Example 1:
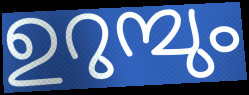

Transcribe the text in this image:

ഉറുമ്പും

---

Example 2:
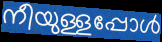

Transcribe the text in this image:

നീയുള്ളപ്പോൾ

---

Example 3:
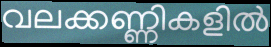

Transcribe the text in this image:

വലക്കണ്ണികളിൽ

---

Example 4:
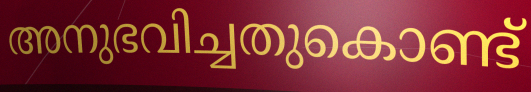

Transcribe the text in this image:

അനുഭവിച്ചതുകൊണ്ട്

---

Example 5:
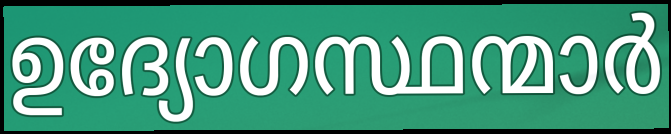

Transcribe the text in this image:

ഉദ്യോഗസ്ഥന്മാർ